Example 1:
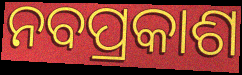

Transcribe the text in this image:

ନବପ୍ରକାଶ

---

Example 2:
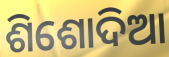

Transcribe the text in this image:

ଶିଶୋଦିଆ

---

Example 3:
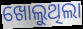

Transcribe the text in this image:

ଖୋଲୁଥିଲା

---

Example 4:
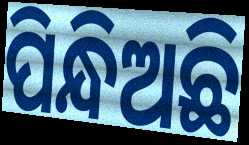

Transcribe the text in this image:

ପିନ୍ଧିଅଛି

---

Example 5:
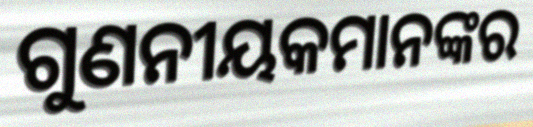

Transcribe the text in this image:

ଗୁଣନୀୟକମାନଙ୍କର